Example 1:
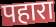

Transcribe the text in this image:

पहारा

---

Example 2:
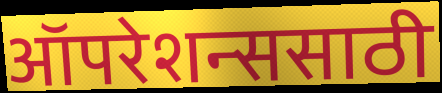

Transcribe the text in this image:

ऑपरेशन्ससाठी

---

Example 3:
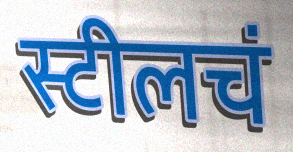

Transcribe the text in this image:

स्टीलचं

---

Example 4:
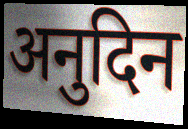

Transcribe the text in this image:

अनुदिन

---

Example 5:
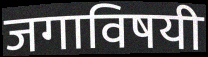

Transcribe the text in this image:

जगाविषयी